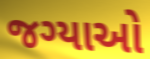
જગ્યાઓ